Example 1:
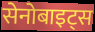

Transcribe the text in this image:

सेनोबाइट्स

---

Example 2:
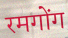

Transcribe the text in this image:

रमगोंग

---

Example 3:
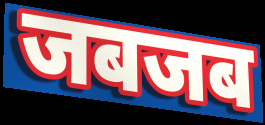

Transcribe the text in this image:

जबजब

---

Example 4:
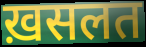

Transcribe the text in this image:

ख़सलत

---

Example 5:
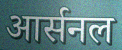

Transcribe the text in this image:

आर्सनल